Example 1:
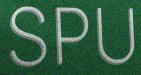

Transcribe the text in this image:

SPU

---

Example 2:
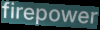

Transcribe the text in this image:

firepower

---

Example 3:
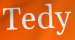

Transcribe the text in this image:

Tedy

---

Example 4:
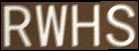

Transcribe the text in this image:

RWHS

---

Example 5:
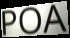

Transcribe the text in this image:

POA